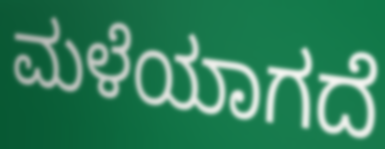
ಮಳೆಯಾಗದೆ